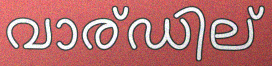
വാര്ഡില്